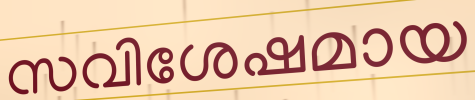
സവിശേഷമായ